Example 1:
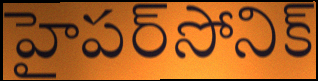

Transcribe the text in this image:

హైపర్‌సోనిక్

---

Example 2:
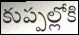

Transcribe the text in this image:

కుప్పల్లోకి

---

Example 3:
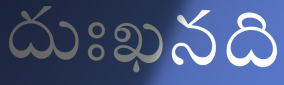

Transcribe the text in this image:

దుఃఖనది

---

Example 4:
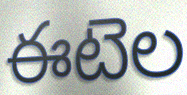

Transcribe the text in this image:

ఈటెల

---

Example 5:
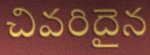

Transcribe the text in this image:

చివరిదైన